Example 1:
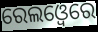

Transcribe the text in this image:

ରେଲଓ୍ୱେରେ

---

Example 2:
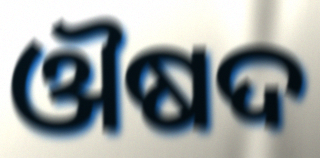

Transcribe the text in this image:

ଔଷଦ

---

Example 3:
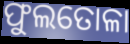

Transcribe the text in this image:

ଫୁଲତୋଳା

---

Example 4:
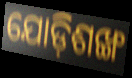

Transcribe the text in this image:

ଯୋଡ଼ିଶଙ୍ଖ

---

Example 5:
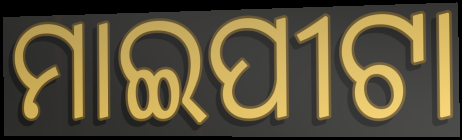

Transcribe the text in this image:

ମାଇପୀଟା